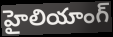
హైలియాంగ్